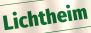
Lichtheim